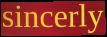
sincerly